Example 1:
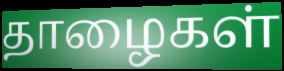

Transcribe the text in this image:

தாழைகள்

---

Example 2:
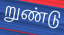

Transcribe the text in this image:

றுண்டு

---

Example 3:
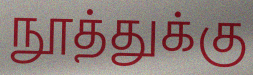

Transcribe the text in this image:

நூத்துக்கு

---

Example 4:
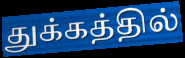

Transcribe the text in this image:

துக்கத்தில்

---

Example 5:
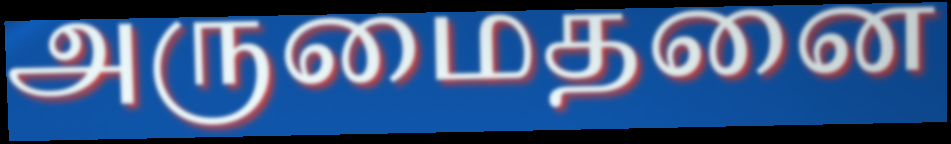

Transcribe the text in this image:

அருமைதனை